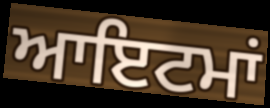
ਆਇਟਮਾਂ